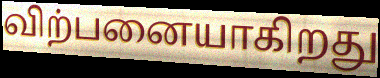
விற்பனையாகிறது